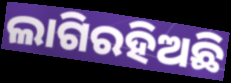
ଲାଗିରହିଅଛି